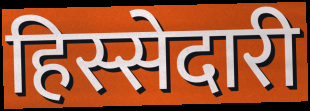
हिस्‍सेदारी